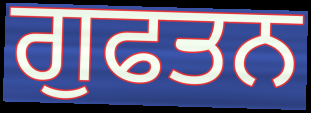
ਗੁਫਤਨ